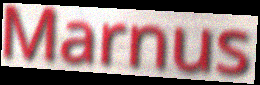
Marnus